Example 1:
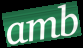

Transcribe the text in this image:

amb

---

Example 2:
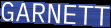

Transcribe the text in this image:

GARNETT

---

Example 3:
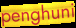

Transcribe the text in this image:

penghuni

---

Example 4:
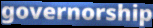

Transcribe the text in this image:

governorship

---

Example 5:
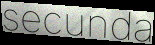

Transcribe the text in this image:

secunda